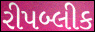
રીપબ્લીક